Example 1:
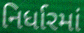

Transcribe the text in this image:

નિર્ધારમાં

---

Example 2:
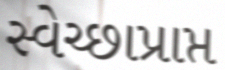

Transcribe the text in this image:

સ્વેચ્છાપ્રાપ્ત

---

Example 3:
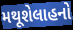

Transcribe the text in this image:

મથૂશેલાહનો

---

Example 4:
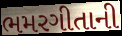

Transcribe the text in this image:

ભમરગીતાની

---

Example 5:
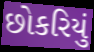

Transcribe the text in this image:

છોકરિયું